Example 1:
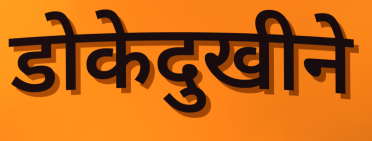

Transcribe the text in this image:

डोकेदुखीने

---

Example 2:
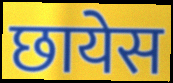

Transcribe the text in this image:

छायेस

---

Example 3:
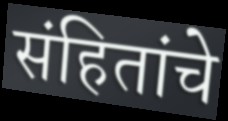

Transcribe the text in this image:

संहितांचे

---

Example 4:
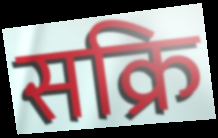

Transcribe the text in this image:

सक्रि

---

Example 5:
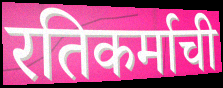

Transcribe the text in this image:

रतिकर्माची